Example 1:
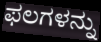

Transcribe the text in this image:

ಫಲಗಳನ್ನು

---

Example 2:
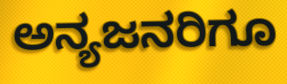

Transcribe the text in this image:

ಅನ್ಯಜನರಿಗೂ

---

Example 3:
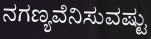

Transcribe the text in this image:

ನಗಣ್ಯವೆನಿಸುವಷ್ಟು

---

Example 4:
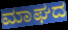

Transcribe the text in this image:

ಮಾಘದ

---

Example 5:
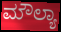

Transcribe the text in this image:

ಮೌಲ್ಯಾ